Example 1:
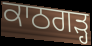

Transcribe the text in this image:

ਕਾਠਗਡ਼੍ਹ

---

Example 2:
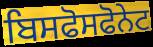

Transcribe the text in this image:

ਬਿਸਫੋਸਫੋਨੇਟ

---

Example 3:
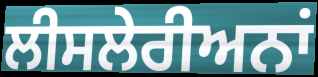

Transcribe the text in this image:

ਲੀਸਲੇਰੀਅਨਾਂ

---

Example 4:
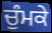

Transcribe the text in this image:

ਚੁੰਮਕੇ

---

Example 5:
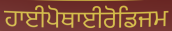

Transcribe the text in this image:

ਹਾਈਪੋਥਾਈਰੋਡਿਜਮ